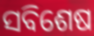
ସବିଶେଷ